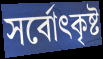
সৰ্বোৎকৃষ্ট